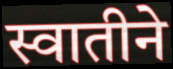
स्वातीने